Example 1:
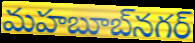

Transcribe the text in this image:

మహబూబ్‌నగర్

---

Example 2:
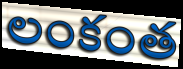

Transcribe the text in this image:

లంకంత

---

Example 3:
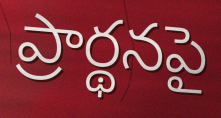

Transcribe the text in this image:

ప్రార్థనపై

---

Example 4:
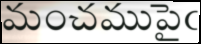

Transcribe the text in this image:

మంచముపైఁ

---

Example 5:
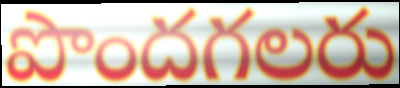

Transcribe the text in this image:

పొందగలరు